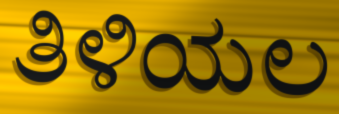
ತಿಳಿಯಲ